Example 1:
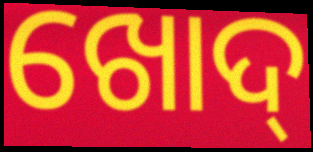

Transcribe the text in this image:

ଖୋଦ୍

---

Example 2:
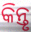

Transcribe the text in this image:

କିନ୍ତୃ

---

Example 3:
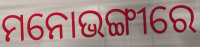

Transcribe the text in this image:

ମନୋଭଙ୍ଗୀରେ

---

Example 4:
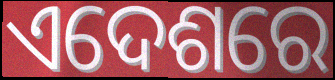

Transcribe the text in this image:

ଏଦେଶରେ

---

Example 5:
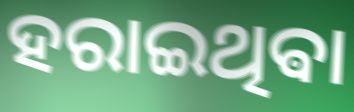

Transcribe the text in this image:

ହରାଇଥିଵା